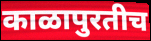
काळापुरतीच